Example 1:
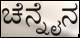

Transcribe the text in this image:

ಚೆನ್ನೈನ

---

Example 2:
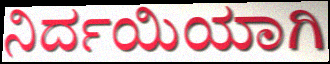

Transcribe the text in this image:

ನಿರ್ದಯಿಯಾಗಿ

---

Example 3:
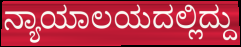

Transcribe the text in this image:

ನ್ಯಾಯಾಲಯದಲ್ಲಿದ್ದು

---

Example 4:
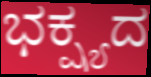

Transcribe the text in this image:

ಭಕ್ಷ್ಯದ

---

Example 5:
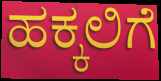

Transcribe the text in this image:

ಹಕ್ಕಲಿಗೆ